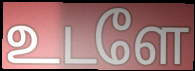
உடளே